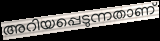
അറിയപ്പെടുന്നതാണ്